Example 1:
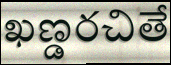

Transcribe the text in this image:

ఖణ్డరచితే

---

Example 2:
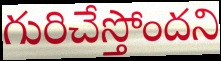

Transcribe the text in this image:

గురిచేస్తోందని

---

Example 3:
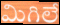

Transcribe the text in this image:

మిగిలే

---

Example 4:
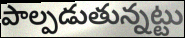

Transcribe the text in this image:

పాల్పడుతున్నట్టు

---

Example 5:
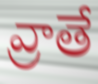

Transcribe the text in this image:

వ్రాతే